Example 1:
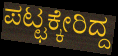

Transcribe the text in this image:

ಪಟ್ಟಕ್ಕೇರಿದ್ದ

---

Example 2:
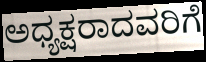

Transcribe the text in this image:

ಅಧ್ಯಕ್ಷರಾದವರಿಗೆ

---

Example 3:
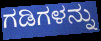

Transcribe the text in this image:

ಗಡಿಗಳನ್ನು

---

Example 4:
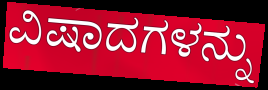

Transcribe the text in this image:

ವಿಷಾದಗಳನ್ನು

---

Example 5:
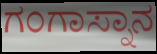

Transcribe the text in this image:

ಗಂಗಾಸ್ನಾನ